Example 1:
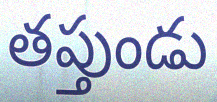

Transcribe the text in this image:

తప్తుండు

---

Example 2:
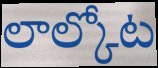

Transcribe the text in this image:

లాల్కోట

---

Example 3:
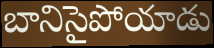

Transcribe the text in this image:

బానిసైపోయాడు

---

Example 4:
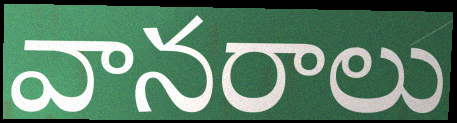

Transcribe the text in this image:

వానరాలు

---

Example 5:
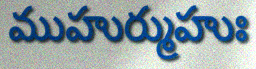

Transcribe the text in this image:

ముహుర్ముహుః